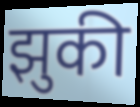
झुकी